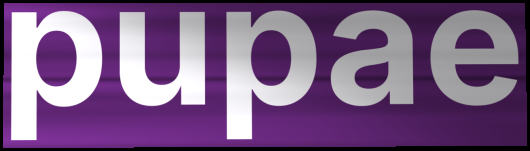
pupae